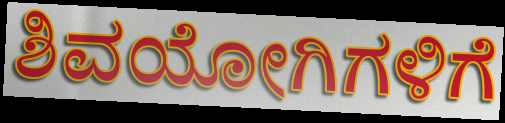
ಶಿವಯೋಗಿಗಳಿಗೆ